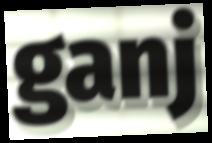
ganj